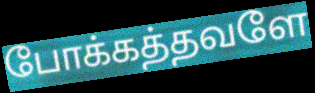
போக்கத்தவளே